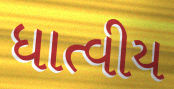
ધાત્વીય